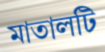
মাতালটি